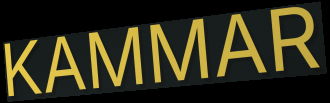
KAMMAR